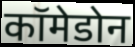
कॉमेडोन